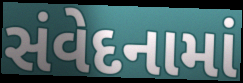
સંવેદનામાં